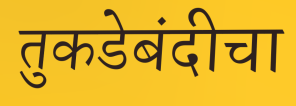
तुकडेबंदीचा